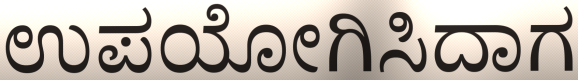
ಉಪಯೋಗಿಸಿದಾಗ